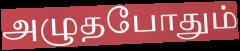
அழுதபோதும்